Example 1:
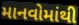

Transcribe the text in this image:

માનવોમાંથી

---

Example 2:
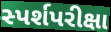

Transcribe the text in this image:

સ્પર્શપરીક્ષા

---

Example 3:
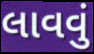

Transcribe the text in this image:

લાવવું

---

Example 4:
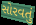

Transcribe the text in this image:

સોરવતું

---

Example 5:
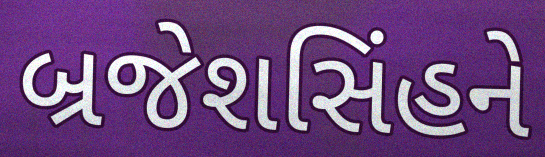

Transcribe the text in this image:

બ્રજેશસિંહને